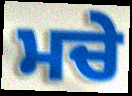
ਮਚੇ